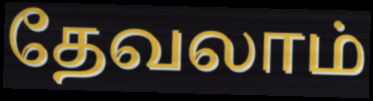
தேவலாம்